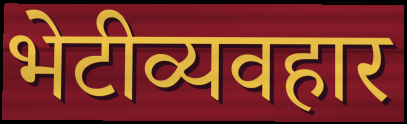
भेटीव्यवहार